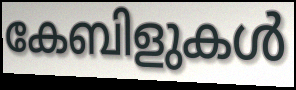
കേബിളുകൾ